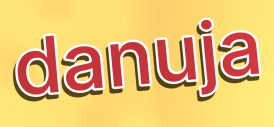
danuja